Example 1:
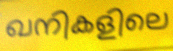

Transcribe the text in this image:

ഖനികളിലെ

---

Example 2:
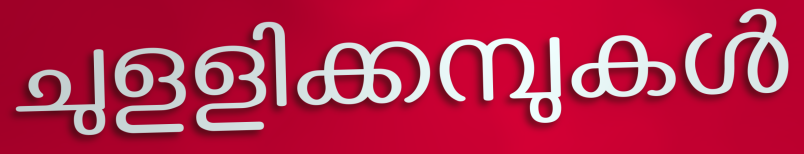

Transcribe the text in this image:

ചുളളിക്കമ്പുകൾ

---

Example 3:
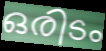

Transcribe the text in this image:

ഒരിടം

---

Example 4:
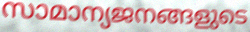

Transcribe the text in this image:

സാമാന്യജനങ്ങളുടെ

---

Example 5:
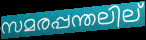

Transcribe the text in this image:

സമരപ്പന്തലില്